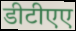
डीटीएए